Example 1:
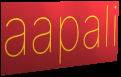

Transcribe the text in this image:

aapali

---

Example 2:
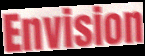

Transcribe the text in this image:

Envision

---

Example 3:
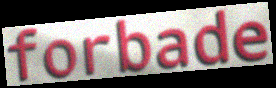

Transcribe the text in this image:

forbade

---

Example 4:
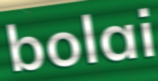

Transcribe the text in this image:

bolai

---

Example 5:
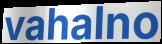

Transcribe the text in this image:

vahalno